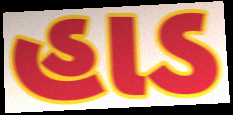
હાડ